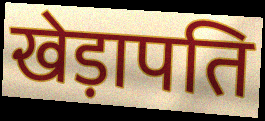
खेड़ापति